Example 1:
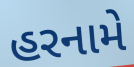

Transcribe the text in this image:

હરનામે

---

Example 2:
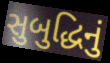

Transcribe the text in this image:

સુબુદ્ધિનું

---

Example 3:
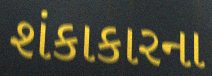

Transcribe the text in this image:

શંકાકારના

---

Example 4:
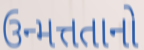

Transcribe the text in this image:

ઉન્મત્તતાનો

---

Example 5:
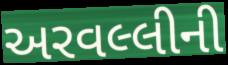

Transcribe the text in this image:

અરવલ્લીની